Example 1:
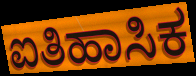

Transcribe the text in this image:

ಐತಿಹಾಸಿಕ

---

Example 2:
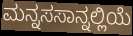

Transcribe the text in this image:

ಮನ್ನಸಸಾನ್ನಲ್ಲಿಯೆ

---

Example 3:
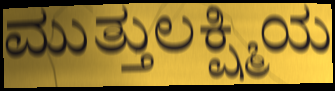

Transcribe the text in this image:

ಮುತ್ತುಲಕ್ಷ್ಮಿಯ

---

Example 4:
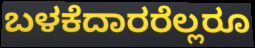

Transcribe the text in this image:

ಬಳಕೆದಾರರೆಲ್ಲರೂ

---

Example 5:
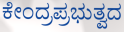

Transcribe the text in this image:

ಕೇಂದ್ರಪ್ರಭುತ್ವದ